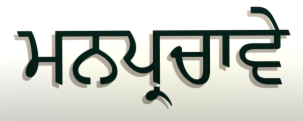
ਮਨਪ੍ਰਚਾਵੇ